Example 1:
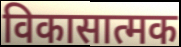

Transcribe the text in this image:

विकासात्मक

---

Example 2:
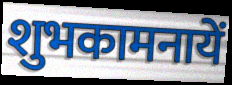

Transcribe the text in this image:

शुभकामनायें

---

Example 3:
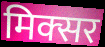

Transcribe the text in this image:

मिक्‍सर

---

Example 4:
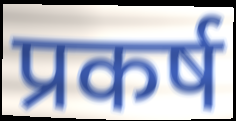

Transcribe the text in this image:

प्रकर्ष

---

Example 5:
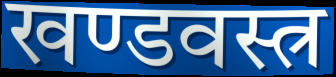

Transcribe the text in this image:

खण्डवस्त्र